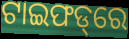
ଟାଇଫଡ୍‌ରେ